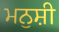
ਮਨੁਸ਼ੀ